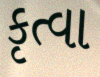
કૃત્વા